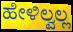
ಹೇಳಿಲ್ವಲ್ಲ